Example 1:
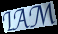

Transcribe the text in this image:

IAM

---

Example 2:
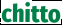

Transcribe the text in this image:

chitto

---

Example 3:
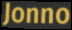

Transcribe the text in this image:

Jonno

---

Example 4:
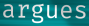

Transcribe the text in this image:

argues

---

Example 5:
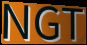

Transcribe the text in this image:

NGT